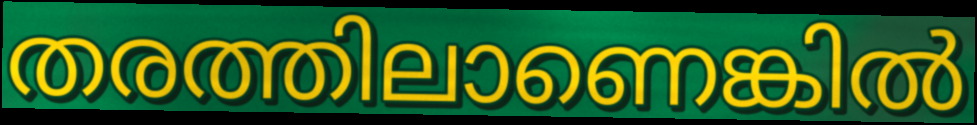
തരത്തിലാണെങ്കിൽ